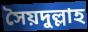
সৈয়দুল্লাহ